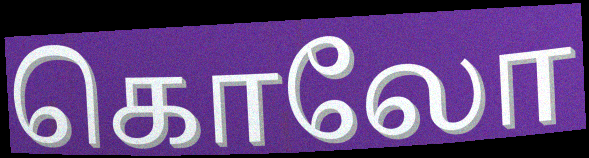
கொலோ